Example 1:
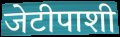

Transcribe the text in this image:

जेटीपाशी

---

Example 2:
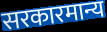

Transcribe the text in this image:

सरकारमान्य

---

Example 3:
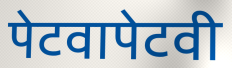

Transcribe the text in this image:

पेटवापेटवी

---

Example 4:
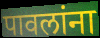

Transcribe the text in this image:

पावलांना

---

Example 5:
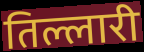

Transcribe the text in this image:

तिल्लारी